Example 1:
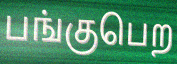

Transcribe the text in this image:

பங்குபெற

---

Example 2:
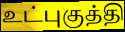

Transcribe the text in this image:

உட்புகுத்தி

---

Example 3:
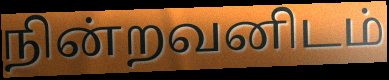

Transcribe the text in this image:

நின்றவனிடம்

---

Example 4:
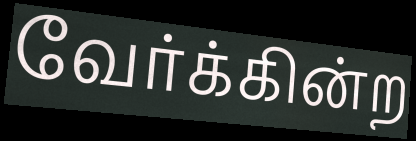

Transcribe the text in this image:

வேர்க்கின்ற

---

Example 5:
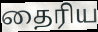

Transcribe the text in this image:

தைரிய